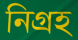
নিগ্রহ